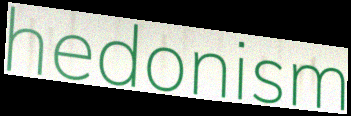
hedonism